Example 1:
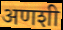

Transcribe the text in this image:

अणशी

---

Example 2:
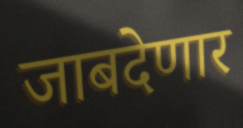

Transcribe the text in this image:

जाबदेणार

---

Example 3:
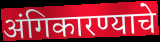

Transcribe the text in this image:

अंगिकारण्याचे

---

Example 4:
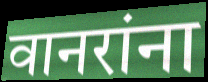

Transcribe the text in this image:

वानरांना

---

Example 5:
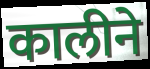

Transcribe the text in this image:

कालीने